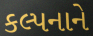
કલ્પનાને